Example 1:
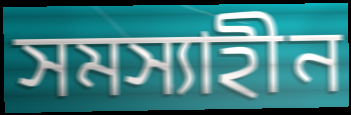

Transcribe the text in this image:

সমস্যাহীন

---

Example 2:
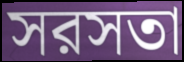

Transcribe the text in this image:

সরসতা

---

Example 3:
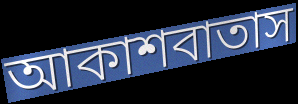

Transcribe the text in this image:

আকাশবাতাস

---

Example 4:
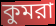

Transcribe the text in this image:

কুমরা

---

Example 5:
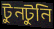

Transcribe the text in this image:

টুনটুনি